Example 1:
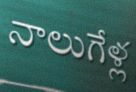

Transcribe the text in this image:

నాలుగేళ్ల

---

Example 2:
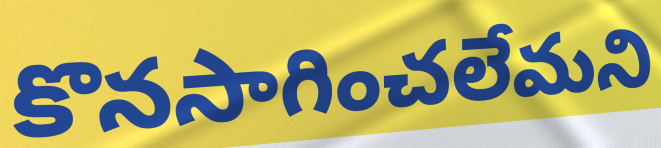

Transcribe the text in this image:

కొనసాగించలేమని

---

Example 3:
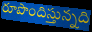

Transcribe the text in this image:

రూపొందిస్తున్నది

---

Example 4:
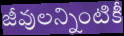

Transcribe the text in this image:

జీవులన్నింటికీ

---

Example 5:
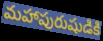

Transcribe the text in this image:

మహాపురుషుడికి